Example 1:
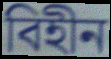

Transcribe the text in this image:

বিহীন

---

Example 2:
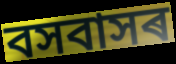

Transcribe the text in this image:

বসবাসৰ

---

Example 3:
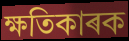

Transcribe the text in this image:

ক্ষতিকাৰক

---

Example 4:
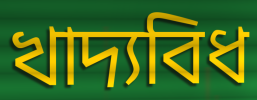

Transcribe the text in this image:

খাদ্যবিধ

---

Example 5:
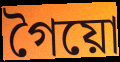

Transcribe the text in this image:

গৈয়ো